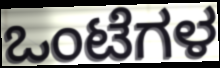
ಒಂಟೆಗಳ